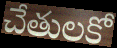
చేతులకో